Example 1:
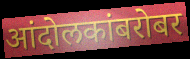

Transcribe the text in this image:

आंदोलकांबरोबर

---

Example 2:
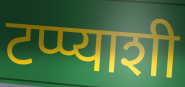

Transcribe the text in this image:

टप्प्याशी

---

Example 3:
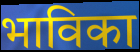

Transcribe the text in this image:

भाविका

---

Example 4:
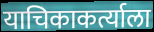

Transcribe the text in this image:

याचिकाकर्त्याला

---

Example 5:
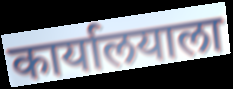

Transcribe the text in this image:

कार्यालयाला